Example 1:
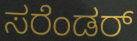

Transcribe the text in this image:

ಸರೆಂಡರ್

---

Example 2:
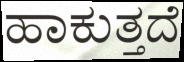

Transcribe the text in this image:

ಹಾಕುತ್ತದೆ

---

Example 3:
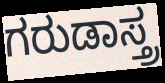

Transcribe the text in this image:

ಗರುಡಾಸ್ತ್ರ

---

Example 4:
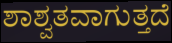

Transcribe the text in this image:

ಶಾಶ್ವತವಾಗುತ್ತದೆ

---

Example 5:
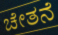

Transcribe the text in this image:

ಚೇತನೆ